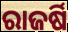
ରାଜର୍ଷି